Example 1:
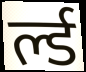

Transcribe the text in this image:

र्ल्ड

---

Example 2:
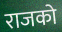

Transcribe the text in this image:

राजको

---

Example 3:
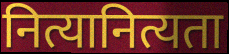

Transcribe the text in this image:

नित्यानित्यता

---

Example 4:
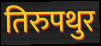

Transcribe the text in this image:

तिरुपथुर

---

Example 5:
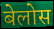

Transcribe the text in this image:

बेलोस